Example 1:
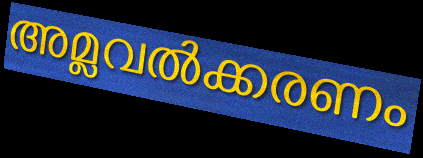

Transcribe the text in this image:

അമ്ലവൽക്കരണം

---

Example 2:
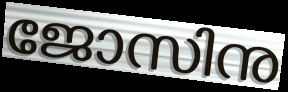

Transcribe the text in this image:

ജോസിനു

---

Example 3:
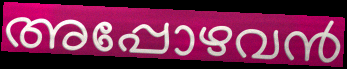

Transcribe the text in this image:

അപ്പോഴവൻ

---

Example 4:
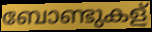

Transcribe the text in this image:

ബോണ്ടുകള്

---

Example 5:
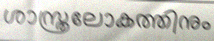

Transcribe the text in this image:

ശാസ്ത്രലോകത്തിനും